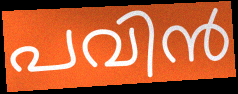
പവിൻ